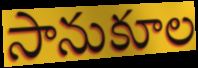
సానుకూల